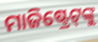
ମାଜିଷ୍ଟ୍ରେଟ୍‌ଙ୍କୁ